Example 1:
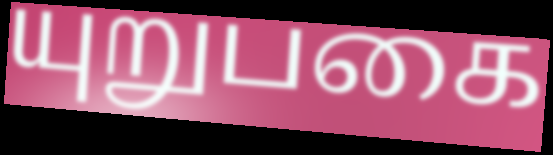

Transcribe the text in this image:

யுறுபகை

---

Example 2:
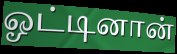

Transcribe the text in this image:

ஓட்டினான்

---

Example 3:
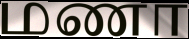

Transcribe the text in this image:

மணா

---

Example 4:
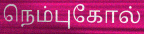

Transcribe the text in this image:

நெம்புகோல்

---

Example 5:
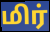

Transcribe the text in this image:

மிர்